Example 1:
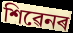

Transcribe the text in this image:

শিৱেনৰ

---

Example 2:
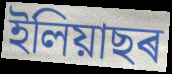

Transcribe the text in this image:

ইলিয়াছৰ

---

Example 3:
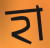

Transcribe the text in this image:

হা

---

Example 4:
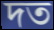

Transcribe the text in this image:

দত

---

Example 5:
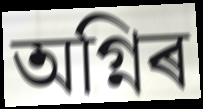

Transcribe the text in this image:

অগ্নিৰ